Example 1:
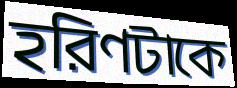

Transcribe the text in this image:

হরিণটাকে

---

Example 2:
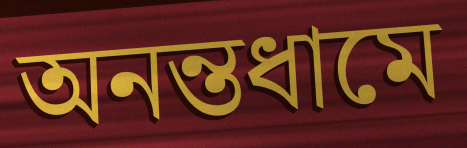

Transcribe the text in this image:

অনন্তধামে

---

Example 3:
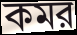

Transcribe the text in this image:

কমর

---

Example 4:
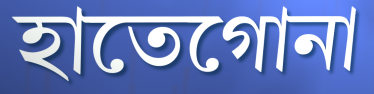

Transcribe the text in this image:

হাতেগোনা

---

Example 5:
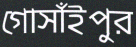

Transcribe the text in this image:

গোসাঁইপুর